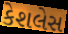
કેશલેસ